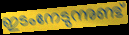
ഇടംനേടുന്നുണ്ട്